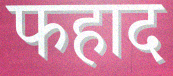
फहाद